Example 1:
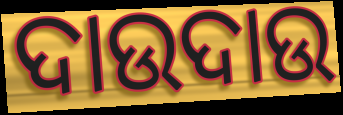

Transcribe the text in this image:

ଦାଉଦାଉ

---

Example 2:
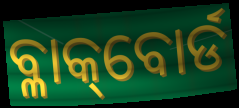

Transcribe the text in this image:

ବ୍ଳାକ୍‌ବୋର୍ଡ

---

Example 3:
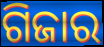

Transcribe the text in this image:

ଗିଜାର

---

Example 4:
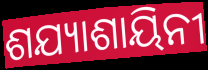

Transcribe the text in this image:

ଶଯ୍ୟାଶାୟିନୀ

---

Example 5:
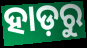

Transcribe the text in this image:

ହାଡ଼ରୁ